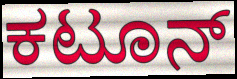
ಕಟೂನ್